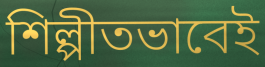
শিল্পীতভাবেই